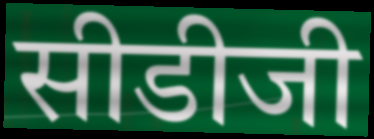
सीडीजी